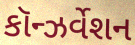
કૉન્ઝર્વેશન